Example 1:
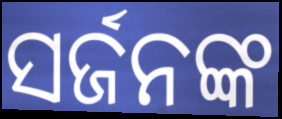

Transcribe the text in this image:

ସର୍ଜନଙ୍କ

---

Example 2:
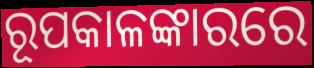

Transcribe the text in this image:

ରୂପକାଳଙ୍କାରରେ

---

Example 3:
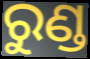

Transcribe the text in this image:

ରୁଣ୍ଡ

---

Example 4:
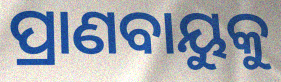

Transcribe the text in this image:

ପ୍ରାଣବାୟୁକୁ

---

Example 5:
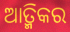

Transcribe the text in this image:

ଆତ୍ମିକର